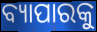
ବ୍ୟାପାରକୁ